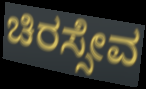
ಚಿರಸ್ಸೇವ